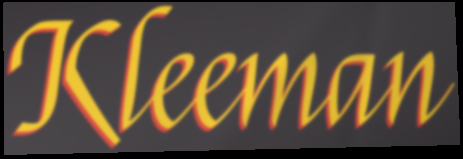
Kleeman